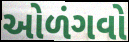
ઓળંગવો